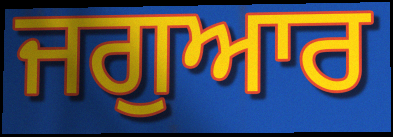
ਜਗੁਆਰ